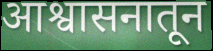
आश्वासनातून